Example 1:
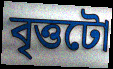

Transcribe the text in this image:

বৃত্তটো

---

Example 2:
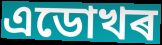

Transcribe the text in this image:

এডোখৰ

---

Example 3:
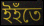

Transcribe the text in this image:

ইহঁতে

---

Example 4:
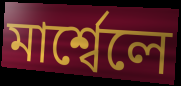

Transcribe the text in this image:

মাৰ্শ্বেলে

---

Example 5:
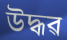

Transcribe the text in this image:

উদ্ধৱ